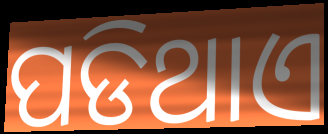
ପଡିଥାଏ